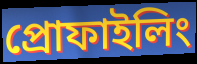
প্রোফাইলিং